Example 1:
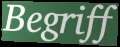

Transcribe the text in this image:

Begriff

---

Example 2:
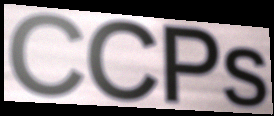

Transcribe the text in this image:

CCPs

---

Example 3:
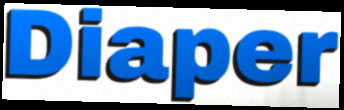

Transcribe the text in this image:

Diaper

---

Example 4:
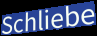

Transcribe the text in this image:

Schliebe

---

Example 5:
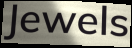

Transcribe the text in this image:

Jewels